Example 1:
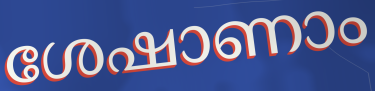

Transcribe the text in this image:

ശേഷാണാം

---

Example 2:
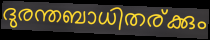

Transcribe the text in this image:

ദുരന്തബാധിതര്ക്കും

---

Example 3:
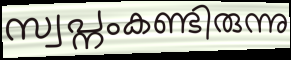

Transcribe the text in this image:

സ്വപ്നംകണ്ടിരുന്നു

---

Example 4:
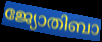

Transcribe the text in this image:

ജ്യോതിബാ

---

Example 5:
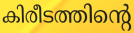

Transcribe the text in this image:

കിരീടത്തിന്റെ